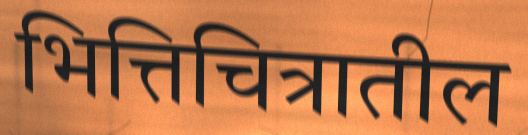
भित्तिचित्रातील